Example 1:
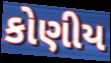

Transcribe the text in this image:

કોણીય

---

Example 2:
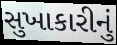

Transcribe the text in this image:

સુખાકારીનું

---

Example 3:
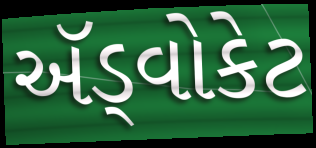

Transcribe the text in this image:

ઍડ્વોકેટ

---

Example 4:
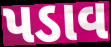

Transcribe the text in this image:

પડાવ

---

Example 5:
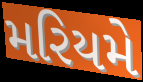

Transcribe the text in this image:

મરિયમે